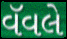
વૅવલે